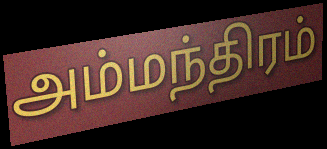
அம்மந்திரம்